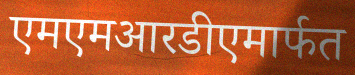
एमएमआरडीएमार्फत